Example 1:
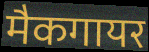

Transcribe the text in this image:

मैकगायर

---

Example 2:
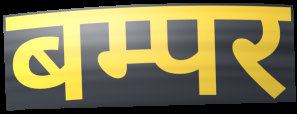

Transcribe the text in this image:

बम्पर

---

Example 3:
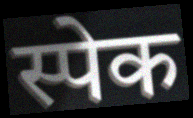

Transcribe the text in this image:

स्पेक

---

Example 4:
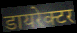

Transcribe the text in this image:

डायरेक्टर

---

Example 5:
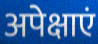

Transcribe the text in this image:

अपेक्षाएं